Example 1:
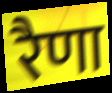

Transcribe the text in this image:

रैणा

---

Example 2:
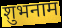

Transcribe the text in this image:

शुभनाम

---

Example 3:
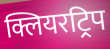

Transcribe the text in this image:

क्लियरट्रिप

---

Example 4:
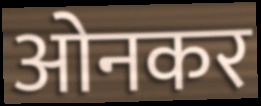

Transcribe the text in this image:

ओनकर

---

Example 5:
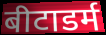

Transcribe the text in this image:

बीटाडर्म